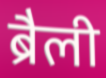
ब्रैली